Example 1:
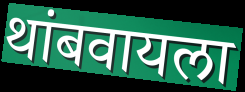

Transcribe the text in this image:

थांबवायला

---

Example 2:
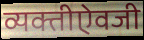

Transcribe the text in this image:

व्यक्तीऐवजी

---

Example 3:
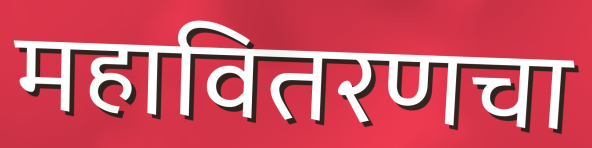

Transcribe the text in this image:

महावितरणचा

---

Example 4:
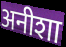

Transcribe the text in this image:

अनीशा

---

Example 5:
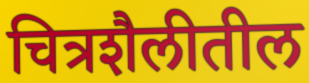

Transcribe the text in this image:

चित्रशैलीतील